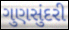
ગુણસુંદરી